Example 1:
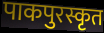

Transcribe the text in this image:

पाकपुरस्कृत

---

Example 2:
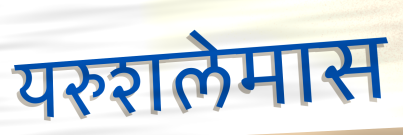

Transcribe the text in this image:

यरुशलेमास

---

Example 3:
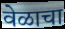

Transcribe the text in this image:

वेळाचा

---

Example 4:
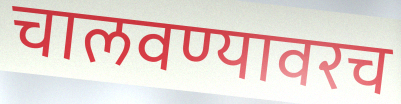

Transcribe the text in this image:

चालवण्यावरच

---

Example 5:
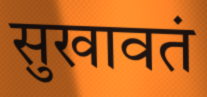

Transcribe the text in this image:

सुखावतं